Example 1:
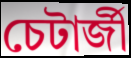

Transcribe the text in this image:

চেটাৰ্জী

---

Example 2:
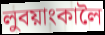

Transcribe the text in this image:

লুবয়াংকালৈ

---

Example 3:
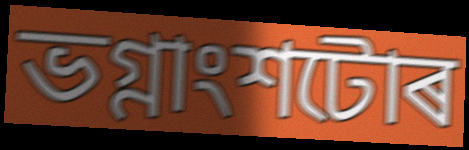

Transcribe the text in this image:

ভগ্নাংশটোৰ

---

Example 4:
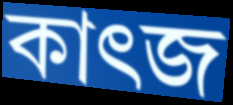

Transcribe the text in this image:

কাৎজ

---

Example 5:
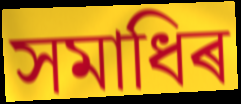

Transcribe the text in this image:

সমাধিৰ